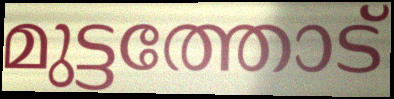
മുട്ടത്തോട്